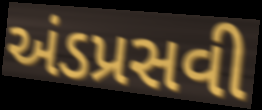
અંડપ્રસવી